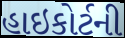
હાઇકોર્ટની